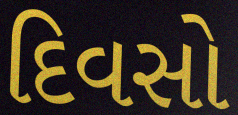
દિવસો